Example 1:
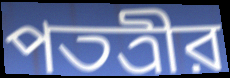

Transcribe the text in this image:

পতত্রীর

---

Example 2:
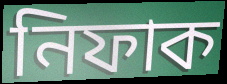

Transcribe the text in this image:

নিফাক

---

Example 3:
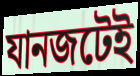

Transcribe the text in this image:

যানজটেই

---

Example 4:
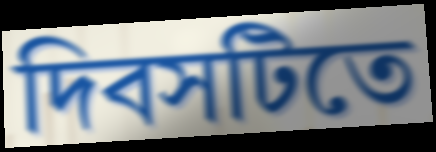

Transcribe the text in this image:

দিবসটিতে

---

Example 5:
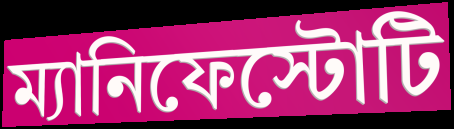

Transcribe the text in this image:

ম্যানিফেস্টোটি